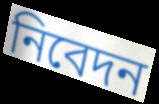
নিবেদন